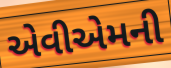
એવીએમની